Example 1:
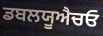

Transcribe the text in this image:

ਡਬਲਯੂਐਚਓ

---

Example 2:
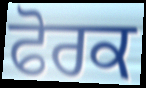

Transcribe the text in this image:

ਫੋਰਕ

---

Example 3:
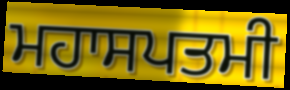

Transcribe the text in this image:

ਮਹਾਸਪਤਮੀ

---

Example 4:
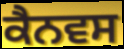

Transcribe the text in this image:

ਕੈਨਵਸ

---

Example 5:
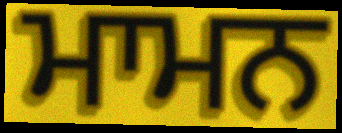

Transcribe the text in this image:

ਮਾਮਨ